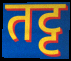
तट्ट